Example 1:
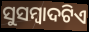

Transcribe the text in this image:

ସୁସମ୍ବାଦଟିଏ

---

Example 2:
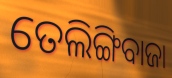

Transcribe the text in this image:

ତେଲିଙ୍ଗିବାଜା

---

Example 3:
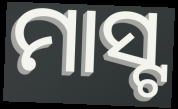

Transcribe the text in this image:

ମାସ୍ଟ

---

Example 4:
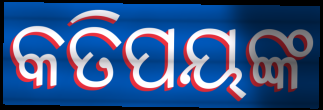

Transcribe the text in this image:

କତିପୟଙ୍କ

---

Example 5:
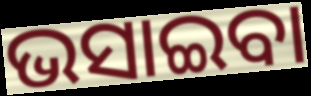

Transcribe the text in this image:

ଭସାଇବା